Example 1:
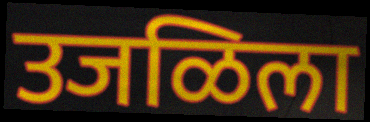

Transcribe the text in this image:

उजळिला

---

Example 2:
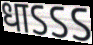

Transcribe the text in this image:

धाऽऽऽ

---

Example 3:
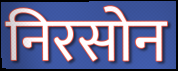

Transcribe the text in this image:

निरसोन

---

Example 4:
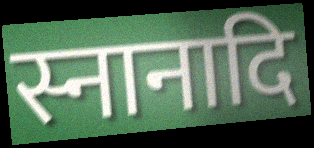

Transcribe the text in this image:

स्नानादि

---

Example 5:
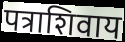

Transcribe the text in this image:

पत्राशिवाय